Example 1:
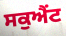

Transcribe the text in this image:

ਸਕੁਐਂਟ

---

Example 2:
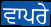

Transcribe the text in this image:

ਵਾਪਰੇ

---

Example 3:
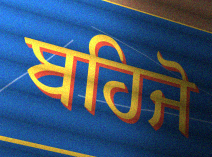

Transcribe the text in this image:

ਬਹਿਜੋ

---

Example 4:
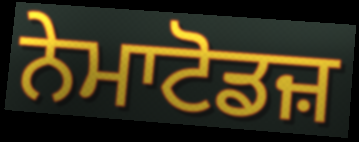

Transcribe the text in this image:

ਨੇਮਾਟੋਡਜ਼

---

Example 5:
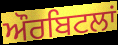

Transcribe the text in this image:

ਔਰਬਿਟਲਾਂ